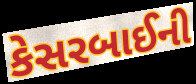
કેસરબાઈની